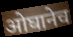
ओघानेच